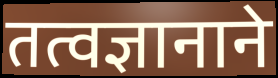
तत्वज्ञानाने